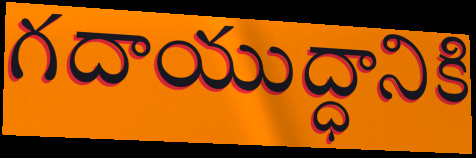
గదాయుద్ధానికి